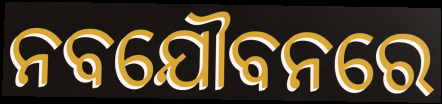
ନବଯୌବନରେ